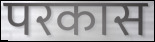
परकास